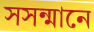
সসন্মানে